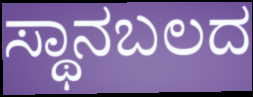
ಸ್ಥಾನಬಲದ